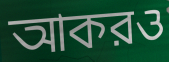
আকরও